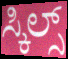
ಸ್ಕಿಲ್ಸ್